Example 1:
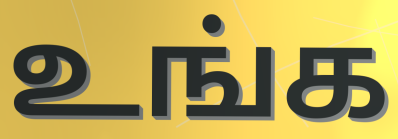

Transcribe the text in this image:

உங்க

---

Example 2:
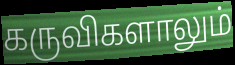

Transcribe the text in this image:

கருவிகளாலும்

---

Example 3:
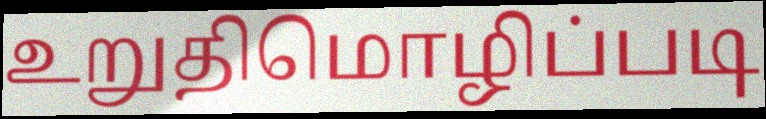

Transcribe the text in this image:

உறுதிமொழிப்படி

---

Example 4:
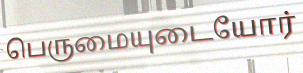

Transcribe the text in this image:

பெருமையுடையோர்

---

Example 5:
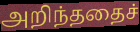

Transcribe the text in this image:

அறிந்ததைச்